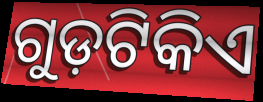
ଗୁଡ଼ଟିକିଏ